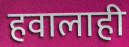
हवालाही